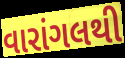
વારાંગલથી